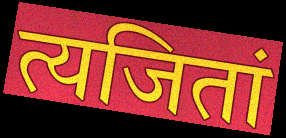
त्यजितां